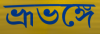
ভ্রূভঙ্গে